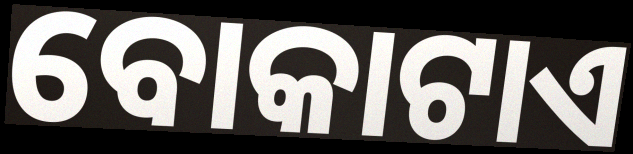
ବୋକାଟାଏ